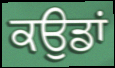
ਕਉਡਾਂ